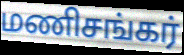
மணிசங்கர்